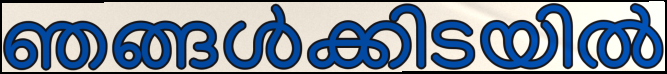
ഞങ്ങൾക്കിടയിൽ